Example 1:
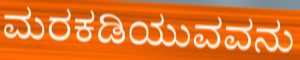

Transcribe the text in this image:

ಮರಕಡಿಯುವವನು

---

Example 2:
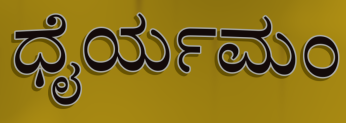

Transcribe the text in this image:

ಧೈರ್ಯಮಂ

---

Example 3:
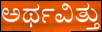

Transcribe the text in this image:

ಅರ್ಥವಿತ್ತು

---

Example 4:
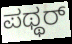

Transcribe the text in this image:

ಪಥ್ಥರ್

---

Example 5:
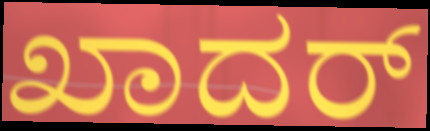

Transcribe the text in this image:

ಖಾದರ್